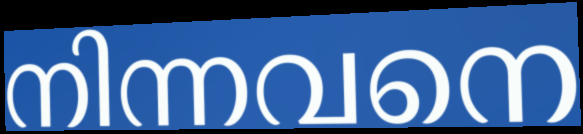
നിന്നവനെ